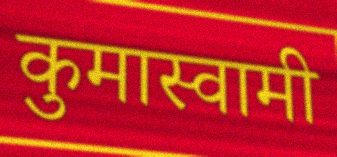
कुमास्वामी